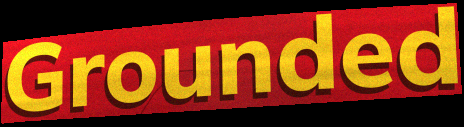
Grounded